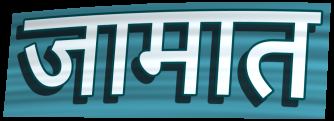
जामात